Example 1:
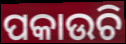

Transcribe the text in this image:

ପକାଉଚି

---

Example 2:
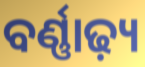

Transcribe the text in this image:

ବର୍ଣ୍ଣାଢ଼୍ୟ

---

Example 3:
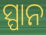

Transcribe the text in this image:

ସ୍ପାନ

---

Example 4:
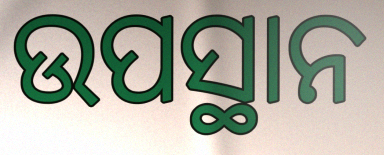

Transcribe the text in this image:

ଉପସ୍ଥାନ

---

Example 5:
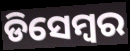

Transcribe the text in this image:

ଡିସେମ୍ୱର